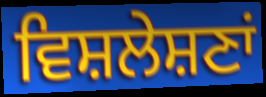
ਵਿਸ਼ਲੇਸ਼ਣਾਂ